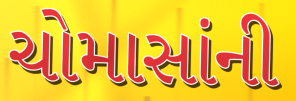
ચોમાસાંની